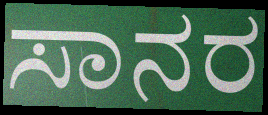
ಸಾನರ